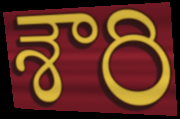
శౌరి